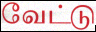
வேட்டு